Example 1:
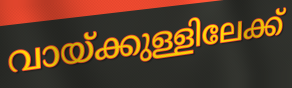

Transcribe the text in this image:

വായ്ക്കുള്ളിലേക്ക്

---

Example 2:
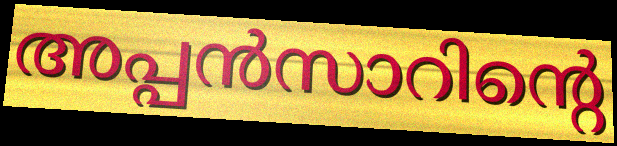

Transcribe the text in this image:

അപ്പൻസാറിന്റെ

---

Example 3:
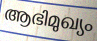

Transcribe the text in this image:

ആഭിമുഖ്യം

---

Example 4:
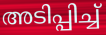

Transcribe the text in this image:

അടിപ്പിച്ച്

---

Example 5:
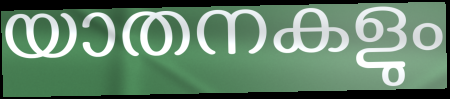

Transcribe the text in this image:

യാതനകളും